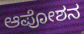
ಆಪೋಶನ